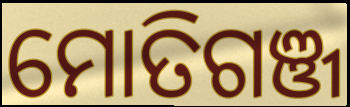
ମୋତିଗଞ୍ଜ